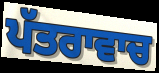
ਪੱਤਰਾਵਾਚ